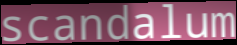
scandalum